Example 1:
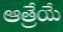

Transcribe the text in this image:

ఆత్రేయే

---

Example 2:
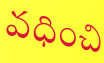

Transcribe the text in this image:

వధించి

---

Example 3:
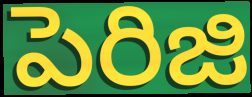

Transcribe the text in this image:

పెరిజి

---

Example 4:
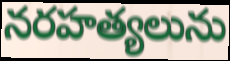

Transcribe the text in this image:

నరహత్యలును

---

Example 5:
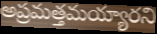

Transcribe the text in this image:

అప్రమత్తమయ్యారని